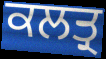
ਕਲਤ੍ਰ